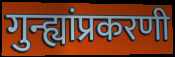
गुन्ह्यांप्रकरणी